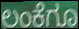
ಲಂಕೆಗೂ